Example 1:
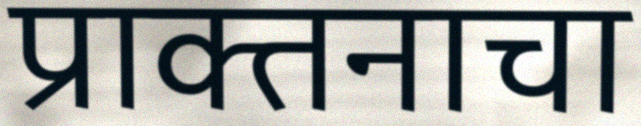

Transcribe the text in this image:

प्राक्तनाचा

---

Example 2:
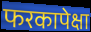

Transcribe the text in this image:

फरकापेक्षा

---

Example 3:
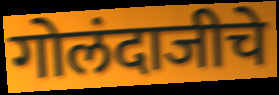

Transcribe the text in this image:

गोलंदाजीचे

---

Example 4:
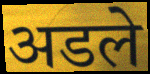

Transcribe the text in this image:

अडले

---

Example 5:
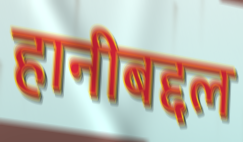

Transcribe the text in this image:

हानीबद्दल